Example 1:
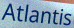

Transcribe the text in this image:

Atlantis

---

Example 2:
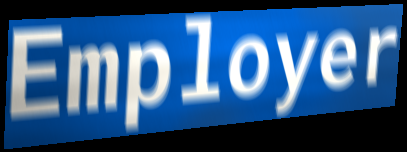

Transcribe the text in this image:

Employer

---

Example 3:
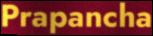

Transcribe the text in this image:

Prapancha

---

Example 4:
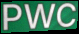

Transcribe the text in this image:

PWC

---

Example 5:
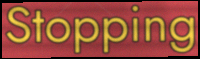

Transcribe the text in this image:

Stopping